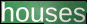
houses